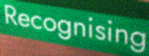
Recognising